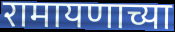
रामायणाच्या